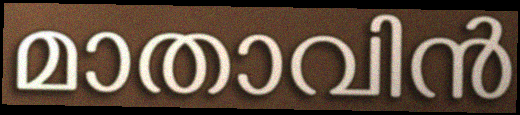
മാതാവിൻ